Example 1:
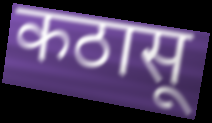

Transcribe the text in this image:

कठासू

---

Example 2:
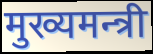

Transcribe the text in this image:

मुख्यमन्त्री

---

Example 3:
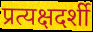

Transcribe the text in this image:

प्रत्यक्षदर्शी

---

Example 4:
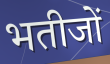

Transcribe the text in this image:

भतीजों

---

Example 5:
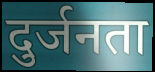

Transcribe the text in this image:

दुर्जनता